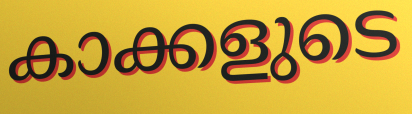
കാക്കളുടെ